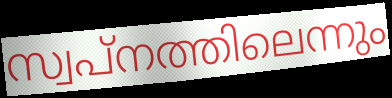
സ്വപ്നത്തിലെന്നും